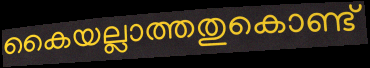
കൈയല്ലാത്തതുകൊണ്ട്